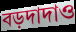
বড়দাদাও